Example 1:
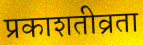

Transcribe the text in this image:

प्रकाशतीव्रता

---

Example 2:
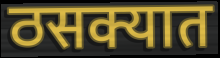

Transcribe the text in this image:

ठसक्यात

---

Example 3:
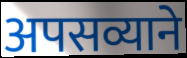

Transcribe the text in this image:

अपसव्याने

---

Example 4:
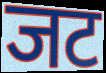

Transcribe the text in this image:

जट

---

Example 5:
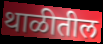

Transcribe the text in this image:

थाळीतील